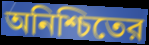
অনিশ্চিতের